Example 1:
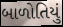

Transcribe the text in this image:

બાળોતિયું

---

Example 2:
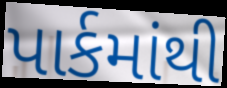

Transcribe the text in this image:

પાર્કમાંથી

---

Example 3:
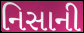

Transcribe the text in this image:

નિસાની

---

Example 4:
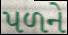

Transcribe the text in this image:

પળને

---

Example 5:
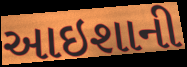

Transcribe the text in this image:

આઇશાની